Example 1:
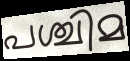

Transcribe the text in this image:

പശ്ചിമ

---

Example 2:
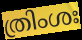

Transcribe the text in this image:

ത്രിംശഃ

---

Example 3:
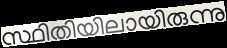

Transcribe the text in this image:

സ്ഥിതിയിലായിരുന്നു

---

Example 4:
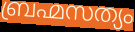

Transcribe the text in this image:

ബ്രഹ്മസത്യം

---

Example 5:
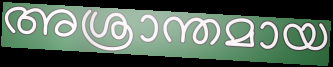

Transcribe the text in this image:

അശ്രാന്തമായ